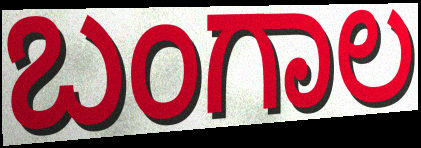
ಬಂಗಾಲ